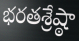
భరతశ్రేష్ఠా